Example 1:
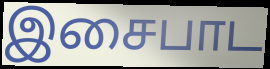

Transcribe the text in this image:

இசைபாட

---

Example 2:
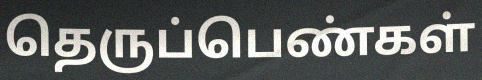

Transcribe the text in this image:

தெருப்பெண்கள்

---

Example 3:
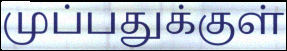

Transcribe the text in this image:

முப்பதுக்குள்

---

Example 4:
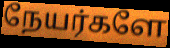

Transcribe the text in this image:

நேயர்களே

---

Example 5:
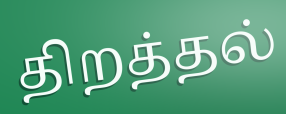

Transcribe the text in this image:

திறத்தல்